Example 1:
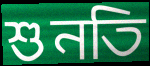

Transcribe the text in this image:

শুনতি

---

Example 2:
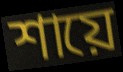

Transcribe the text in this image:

শায়ে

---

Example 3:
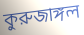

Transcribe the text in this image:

কুরুজাঙ্গল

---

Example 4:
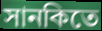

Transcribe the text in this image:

সানকিতে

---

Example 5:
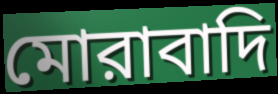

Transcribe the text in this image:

মোরাবাদি